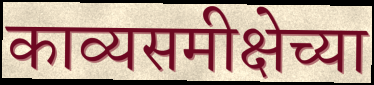
काव्यसमीक्षेच्या